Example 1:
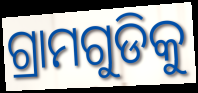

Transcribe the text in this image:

ଗ୍ରାମଗୁଡିକୁ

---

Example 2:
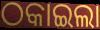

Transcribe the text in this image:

ଠକାଇଲା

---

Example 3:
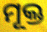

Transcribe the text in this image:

ମୂକ୍ତ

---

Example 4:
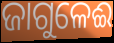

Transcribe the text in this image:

ଜାଗୁଳେଈ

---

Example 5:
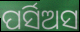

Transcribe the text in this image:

ପର୍ସିଅସ